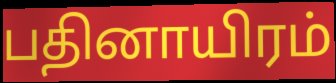
பதினாயிரம்